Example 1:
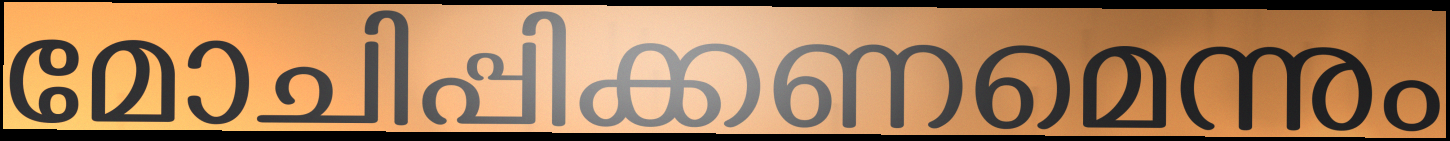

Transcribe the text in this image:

മോചിപ്പിക്കണമെന്നും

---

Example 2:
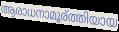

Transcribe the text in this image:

ആരാധനാമൂര്ത്തിയായ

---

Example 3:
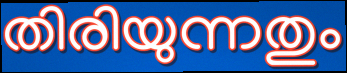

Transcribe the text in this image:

തിരിയുന്നതും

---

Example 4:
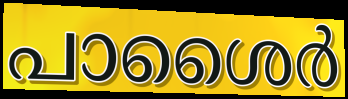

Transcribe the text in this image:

പാശൈർ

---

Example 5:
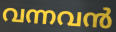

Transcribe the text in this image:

വന്നവൻ